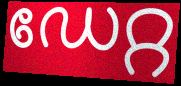
ഡേറ്റ